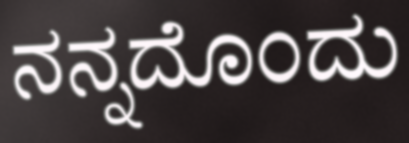
ನನ್ನದೊಂದು